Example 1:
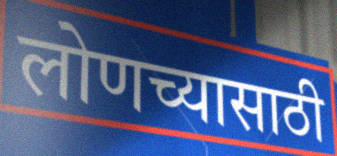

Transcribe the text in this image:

लोणच्यासाठी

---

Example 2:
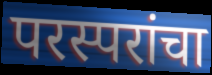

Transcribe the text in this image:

परस्परांचा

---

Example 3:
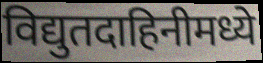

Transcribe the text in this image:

विद्युतदाहिनीमध्ये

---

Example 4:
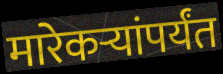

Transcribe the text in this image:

मारेकऱ्यांपर्यंत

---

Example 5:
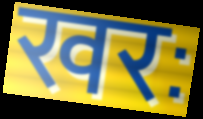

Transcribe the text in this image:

खरः